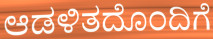
ಆಡಳಿತದೊಂದಿಗೆ